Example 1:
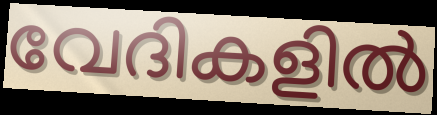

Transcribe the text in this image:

വേദികളിൽ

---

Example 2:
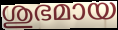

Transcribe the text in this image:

ശുഭമായ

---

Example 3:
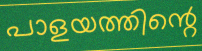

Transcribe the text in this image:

പാളയത്തിന്റെ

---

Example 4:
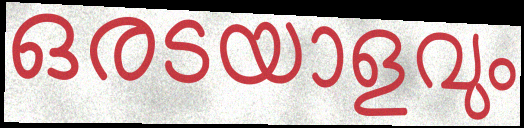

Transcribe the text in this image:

ഒരടയാളവും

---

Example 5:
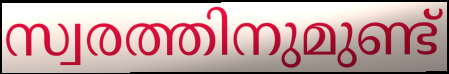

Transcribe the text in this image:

സ്വരത്തിനുമുണ്ട്